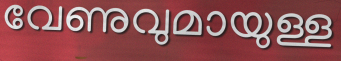
വേണുവുമായുള്ള